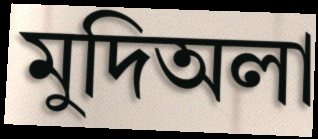
মুদিঅলা